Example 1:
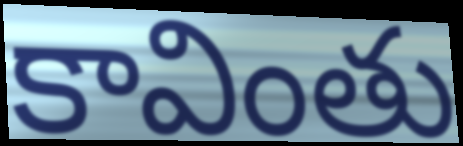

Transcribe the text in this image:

కావింతు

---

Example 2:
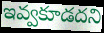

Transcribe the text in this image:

ఇవ్వకూడదని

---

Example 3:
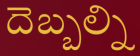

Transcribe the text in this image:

దెబ్బల్ని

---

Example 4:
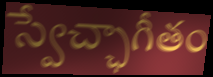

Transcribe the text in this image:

స్వేచ్ఛాగీతం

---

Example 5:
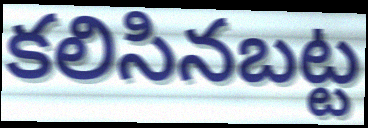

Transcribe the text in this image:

కలిసినబట్ట